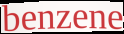
benzene